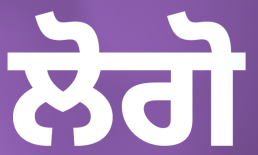
ਲੋਗੋ